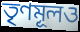
তৃণমূলও